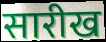
सारीख